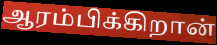
ஆரம்பிக்கிறான்